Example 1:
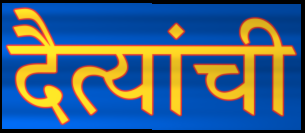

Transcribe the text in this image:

दैत्यांची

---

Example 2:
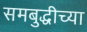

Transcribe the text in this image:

समबुद्धीच्या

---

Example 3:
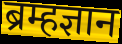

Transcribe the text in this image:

ब्रम्हज्ञान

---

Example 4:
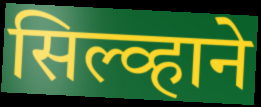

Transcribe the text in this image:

सिल्व्हाने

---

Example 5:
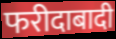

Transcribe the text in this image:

फरीदाबादी